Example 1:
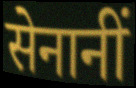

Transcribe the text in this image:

सेनानीं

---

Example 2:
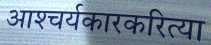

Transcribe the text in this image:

आश्‍चर्यकारकरित्या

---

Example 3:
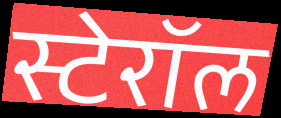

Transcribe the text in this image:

स्टेरॉल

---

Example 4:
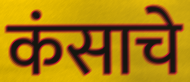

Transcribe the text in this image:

कंसाचे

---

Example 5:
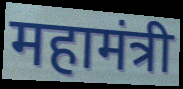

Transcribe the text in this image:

महामंत्री